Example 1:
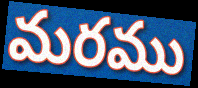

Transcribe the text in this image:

మరము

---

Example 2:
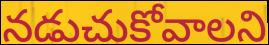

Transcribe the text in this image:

నడుచుకోవాలని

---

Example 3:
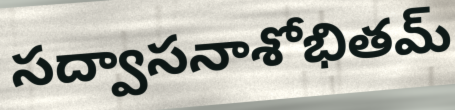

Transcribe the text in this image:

సద్వాసనాశోభితమ్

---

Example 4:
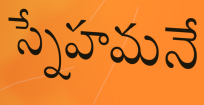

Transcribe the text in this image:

స్నేహమనే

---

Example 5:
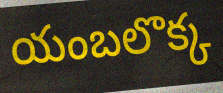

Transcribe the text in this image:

యంబలొక్క